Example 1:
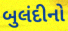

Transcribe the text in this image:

બુલંદીનો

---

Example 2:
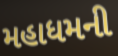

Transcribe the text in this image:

મહાધમની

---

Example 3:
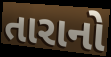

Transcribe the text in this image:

તારાનો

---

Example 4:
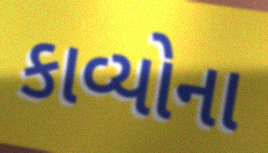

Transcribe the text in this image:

કાવ્યોના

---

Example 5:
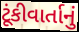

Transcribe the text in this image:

ટૂંકીવાર્તાનું